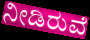
ನೀಡಿರುವೆ